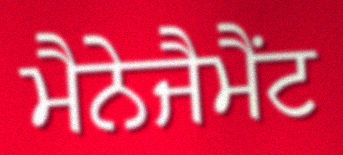
ਮੈਨੇਜੈਮੈਂਟ